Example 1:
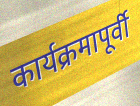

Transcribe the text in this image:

कार्यक्रमापूर्वी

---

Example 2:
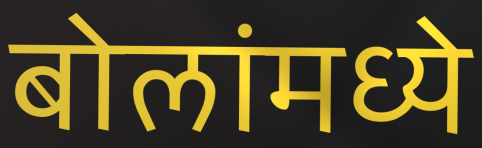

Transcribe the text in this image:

बोलांमध्ये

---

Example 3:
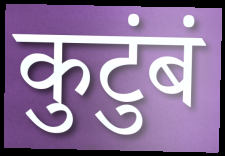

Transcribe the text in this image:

कुटुंबं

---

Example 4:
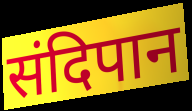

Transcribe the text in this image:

संदिपान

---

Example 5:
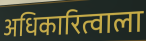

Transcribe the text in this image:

अधिकारित्वाला